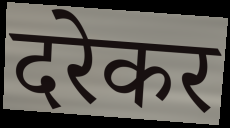
दरेकर